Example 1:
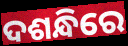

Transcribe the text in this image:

ଦଶନ୍ଧିରେ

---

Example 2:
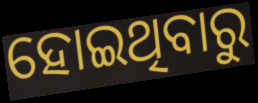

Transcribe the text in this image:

ହୋଇଥିବାରୁ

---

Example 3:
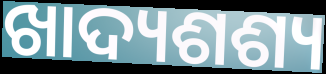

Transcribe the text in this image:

ଖାଦ୍ୟଶଶ୍ୟ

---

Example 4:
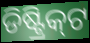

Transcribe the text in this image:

ଡିଷ୍ଟ୍ରିକ୍‌ଟ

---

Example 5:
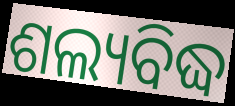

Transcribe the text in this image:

ଶଲ୍ୟବିଦ୍ଧ